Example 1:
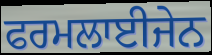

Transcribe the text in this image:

ਫਰਮਲਾਈਜੇਨ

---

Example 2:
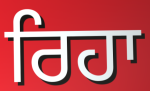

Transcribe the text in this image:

ਰਿਹਾ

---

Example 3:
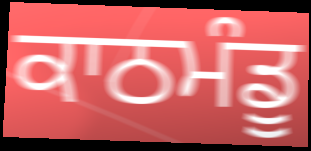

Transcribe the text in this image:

ਕਾਠਮੰਡੂ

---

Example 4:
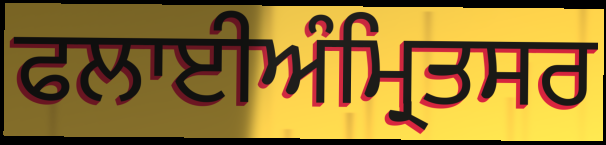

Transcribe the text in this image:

ਫਲਾਈਅੰਮ੍ਰਿਤਸਰ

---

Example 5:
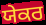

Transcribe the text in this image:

ਯੇਕਰ